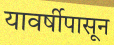
यावर्षीपासून